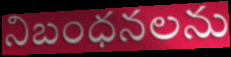
నిబంధనలను